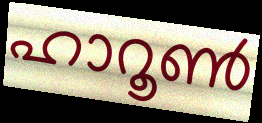
ഹാറൂൺ